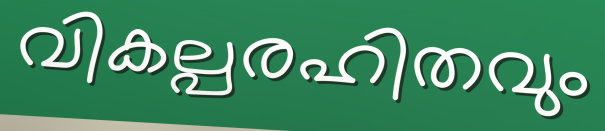
വികല്പരഹിതവും